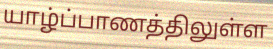
யாழ்ப்பாணத்திலுள்ள